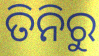
ତିନିରୁ